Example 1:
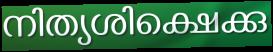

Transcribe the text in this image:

നിത്യശിക്ഷെക്കു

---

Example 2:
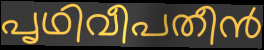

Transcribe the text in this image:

പൃഥിവീപതീൻ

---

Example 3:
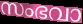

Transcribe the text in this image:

സംഭവാ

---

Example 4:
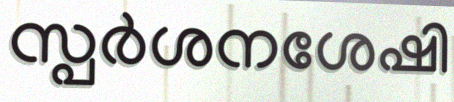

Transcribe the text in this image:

സ്പർശനശേഷി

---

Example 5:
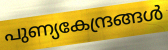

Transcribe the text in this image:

പുണ്യകേന്ദ്രങ്ങൾ